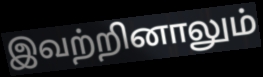
இவற்றினாலும்